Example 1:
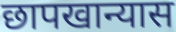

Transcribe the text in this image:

छापखान्यास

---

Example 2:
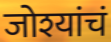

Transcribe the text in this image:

जोश्यांचं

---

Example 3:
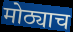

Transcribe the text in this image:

मोठ्याच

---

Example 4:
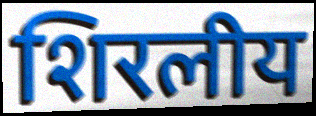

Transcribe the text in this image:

शिरलीय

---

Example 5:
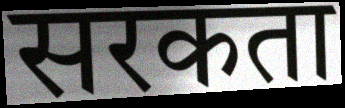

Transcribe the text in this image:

सरकता